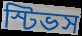
স্টিভস